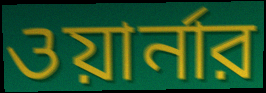
ওয়ার্নার